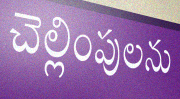
చెల్లింపులను